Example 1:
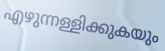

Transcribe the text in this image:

എഴുന്നള്ളിക്കുകയും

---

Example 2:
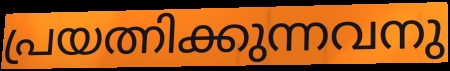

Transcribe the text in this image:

പ്രയത്നിക്കുന്നവനു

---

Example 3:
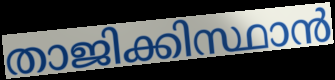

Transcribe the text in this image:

താജിക്കിസ്ഥാൻ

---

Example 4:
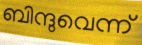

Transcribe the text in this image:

ബിന്ദുവെന്ന്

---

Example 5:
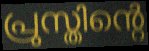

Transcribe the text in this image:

പ്രുസ്തിന്റെ